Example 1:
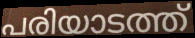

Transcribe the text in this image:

പരിയാടത്ത്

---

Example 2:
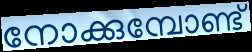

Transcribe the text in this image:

നോക്കുമ്പോണ്ട്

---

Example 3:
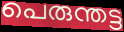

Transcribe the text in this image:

പെരുന്തട്ട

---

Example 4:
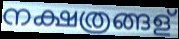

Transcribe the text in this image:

നക്ഷത്രങ്ങള്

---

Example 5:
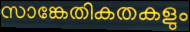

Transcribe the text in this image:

സാങ്കേതികതകളും